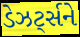
ડેઝર્ટ્સને